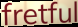
fretful